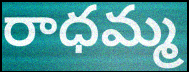
రాధమ్మ